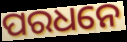
ପରଧନେ